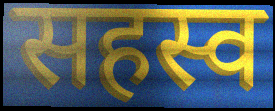
सहस्व